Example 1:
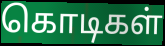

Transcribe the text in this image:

கொடிகள்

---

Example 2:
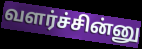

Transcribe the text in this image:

வளர்ச்சின்னு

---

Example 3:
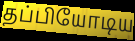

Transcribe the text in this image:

தப்பியோடிய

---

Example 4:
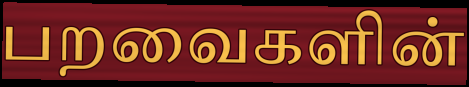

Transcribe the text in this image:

பறவைகளின்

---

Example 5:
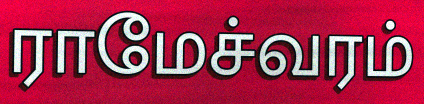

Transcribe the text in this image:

ராமேச்வரம்